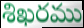
శిఖరము